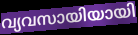
വ്യവസായിയായി